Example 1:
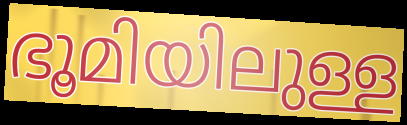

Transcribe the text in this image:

ഭൂമിയിലുള്ള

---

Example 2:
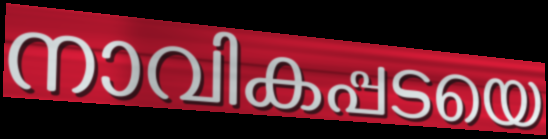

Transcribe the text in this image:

നാവികപ്പടയെ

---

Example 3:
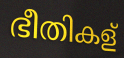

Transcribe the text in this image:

ഭീതികള്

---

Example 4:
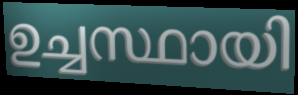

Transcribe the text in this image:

ഉച്ചസ്ഥായി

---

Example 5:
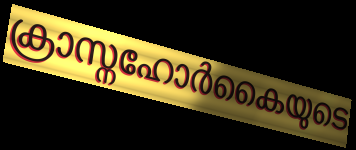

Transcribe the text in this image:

ക്രാസ്നഹോർകൈയുടെ